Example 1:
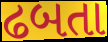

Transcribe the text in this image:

ઢબતા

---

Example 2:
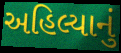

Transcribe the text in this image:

અહિલ્યાનું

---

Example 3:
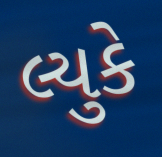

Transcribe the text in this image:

લ્યુકે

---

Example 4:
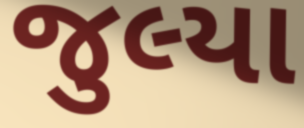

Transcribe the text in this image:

જુલ્યા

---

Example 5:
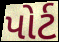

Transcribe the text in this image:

પોર્ટ